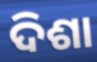
ଦିଶା